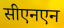
सीएनएन